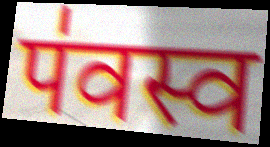
प॑वस्व